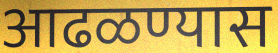
आढळण्यास